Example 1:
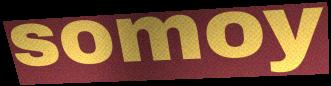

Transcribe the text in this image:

somoy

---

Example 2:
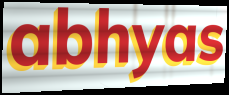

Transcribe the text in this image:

abhyas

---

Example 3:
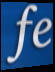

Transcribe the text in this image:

fe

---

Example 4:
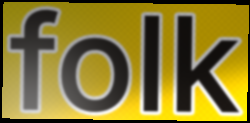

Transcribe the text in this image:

folk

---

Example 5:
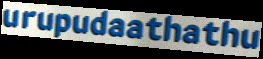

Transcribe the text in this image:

urupudaathathu